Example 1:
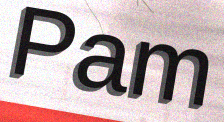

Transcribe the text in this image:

Pam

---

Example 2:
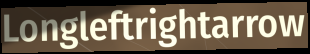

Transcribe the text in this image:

Longleftrightarrow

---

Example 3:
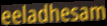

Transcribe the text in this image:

eeladhesam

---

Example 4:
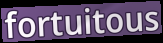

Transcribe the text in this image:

fortuitous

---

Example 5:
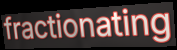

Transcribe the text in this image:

fractionating